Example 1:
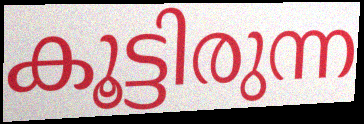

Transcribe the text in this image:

കൂട്ടിരുന്ന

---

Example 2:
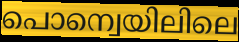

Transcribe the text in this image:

പൊന്വെയിലിലെ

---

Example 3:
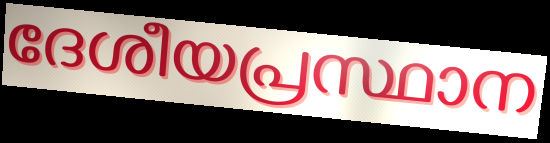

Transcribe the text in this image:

ദേശീയപ്രസ്ഥാന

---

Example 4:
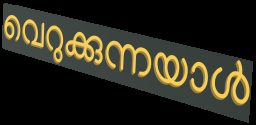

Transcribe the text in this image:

വെറുക്കുന്നയാൾ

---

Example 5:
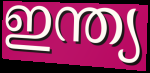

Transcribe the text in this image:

ഇന്ത്യ